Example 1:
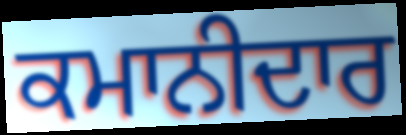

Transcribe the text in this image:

ਕਮਾਨੀਦਾਰ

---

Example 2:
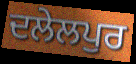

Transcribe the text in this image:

ਦਲੇਲਪੁਰ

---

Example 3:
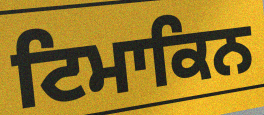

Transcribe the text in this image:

ਟਿਮਾਕਿਨ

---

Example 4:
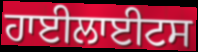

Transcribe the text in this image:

ਹਾਈਲਾਈਟਸ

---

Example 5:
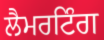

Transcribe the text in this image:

ਲੈਮਰਟਿੰਗ